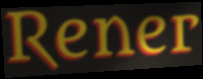
Rener